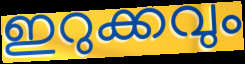
ഇറുക്കവും